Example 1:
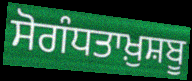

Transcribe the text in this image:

ਸੋਗੰਧਤਾਖ਼ੁਸ਼ਬੂ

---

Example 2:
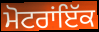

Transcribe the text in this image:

ਮੋਟਰਾਂਇੱਕ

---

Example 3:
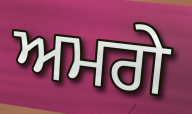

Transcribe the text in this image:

ਅਮਗੇ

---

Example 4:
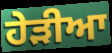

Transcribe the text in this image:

ਹੇੜੀਆ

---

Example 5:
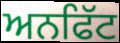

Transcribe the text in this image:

ਅਨਫਿੱਟ